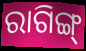
ରାଗିଙ୍ଗ୍